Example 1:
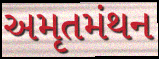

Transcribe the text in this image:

અમૃતમંથન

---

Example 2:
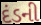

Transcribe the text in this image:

દંડની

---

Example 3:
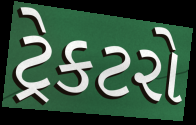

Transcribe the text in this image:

ટ્રેકટરો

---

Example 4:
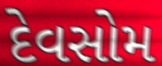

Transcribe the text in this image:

દેવસોમ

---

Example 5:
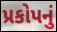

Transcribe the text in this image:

પ્રકોપનું